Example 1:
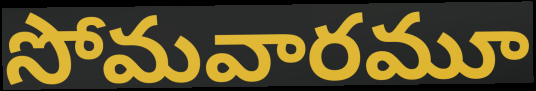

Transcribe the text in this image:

సోమవారమూ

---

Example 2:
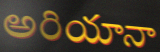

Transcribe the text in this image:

అరియానా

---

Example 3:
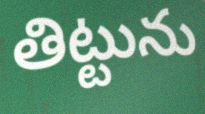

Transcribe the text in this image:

తిట్టును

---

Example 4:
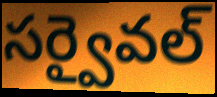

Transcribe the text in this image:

సర్వైవల్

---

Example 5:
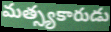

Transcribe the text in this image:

మత్స్యకారుడు